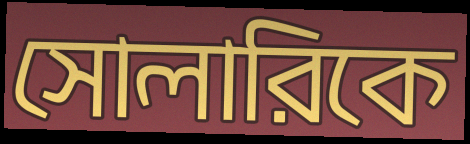
সোলারিকে